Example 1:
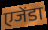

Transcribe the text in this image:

एजेंडा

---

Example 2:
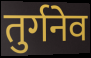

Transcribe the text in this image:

तुर्गनेव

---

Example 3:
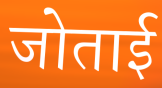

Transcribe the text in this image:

जोताई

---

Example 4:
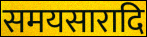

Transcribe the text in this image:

समयसारादि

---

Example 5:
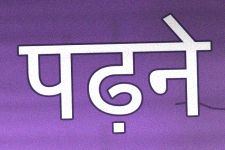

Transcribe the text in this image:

पढ़ने